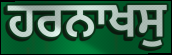
ਹਰਨਾਖਸੁ